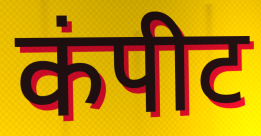
कंपीट